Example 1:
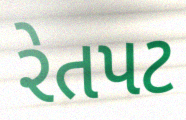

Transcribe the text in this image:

રેતપટ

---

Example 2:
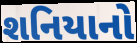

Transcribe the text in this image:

શનિયાનો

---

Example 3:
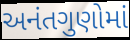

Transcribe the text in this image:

અનંતગુણોમાં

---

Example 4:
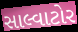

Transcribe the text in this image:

સાલ્વાટોર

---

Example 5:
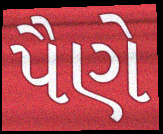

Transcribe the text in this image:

પૈણે